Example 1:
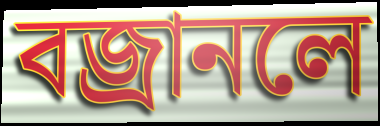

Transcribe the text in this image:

বজ্রানলে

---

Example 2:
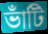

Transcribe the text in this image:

ভাঁটি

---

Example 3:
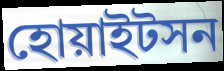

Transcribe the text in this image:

হোয়াইটসন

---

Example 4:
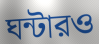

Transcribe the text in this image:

ঘন্টারও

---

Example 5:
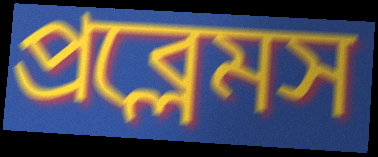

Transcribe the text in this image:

প্রব্লেমস